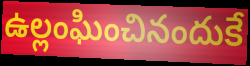
ఉల్లంఘించినందుకే